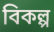
বিকল্প